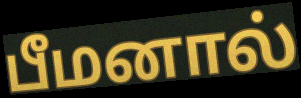
பீமனால்